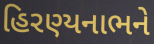
હિરણ્યનાભને